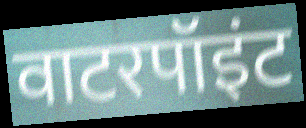
वाटरपॉइंट